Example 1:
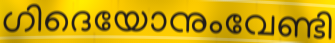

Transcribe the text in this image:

ഗിദെയോനുംവേണ്ടി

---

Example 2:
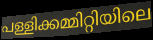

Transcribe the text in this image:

പള്ളിക്കമ്മിറ്റിയിലെ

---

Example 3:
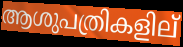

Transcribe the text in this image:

ആശുപത്രികളില്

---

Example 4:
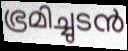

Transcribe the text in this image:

ഭ്രമിച്ചുടൻ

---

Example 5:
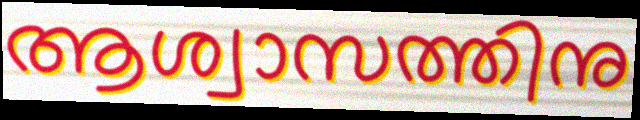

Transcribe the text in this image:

ആശ്വാസത്തിനു